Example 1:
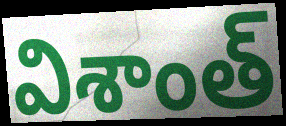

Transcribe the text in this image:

విశాంత్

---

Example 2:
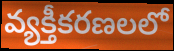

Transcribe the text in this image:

వ్యక్తీకరణలలో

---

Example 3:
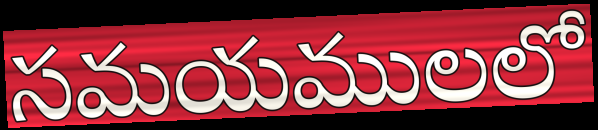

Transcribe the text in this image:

సమయములలో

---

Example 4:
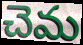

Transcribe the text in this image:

చెమ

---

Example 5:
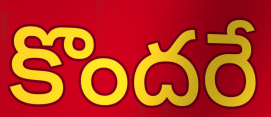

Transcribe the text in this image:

కొందరే